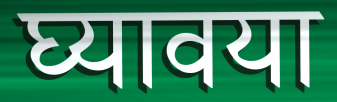
घ्यावया